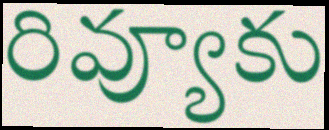
రివ్యూకు